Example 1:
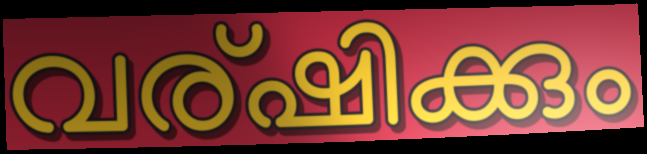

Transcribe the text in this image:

വര്ഷിക്കും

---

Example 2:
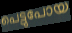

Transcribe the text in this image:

പെട്ടുപോയ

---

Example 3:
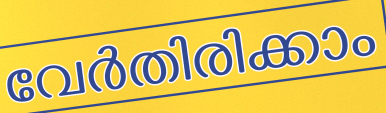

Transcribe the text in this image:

വേർതിരിക്കാം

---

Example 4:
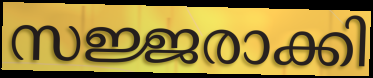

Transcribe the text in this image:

സജ്ജരാക്കി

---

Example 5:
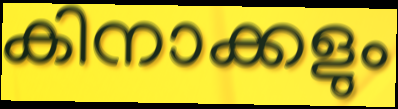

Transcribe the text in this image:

കിനാക്കളും